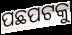
ପଛପଟକୁ